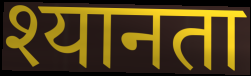
श्यानता